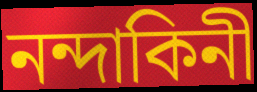
নন্দাকিনী